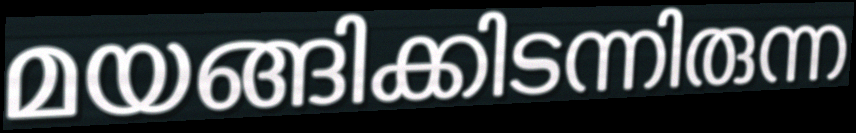
മയങ്ങിക്കിടന്നിരുന്ന